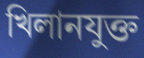
খিলানযুক্ত